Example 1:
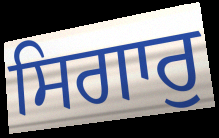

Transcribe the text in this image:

ਸਿਗਾਰੁ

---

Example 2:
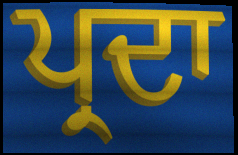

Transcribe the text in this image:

ਪ੍ਰਦਾ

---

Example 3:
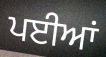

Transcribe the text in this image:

ਪਈਆਂ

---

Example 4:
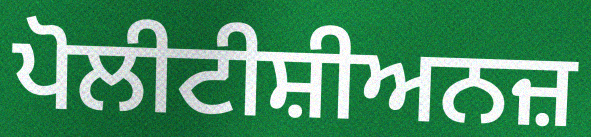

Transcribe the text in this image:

ਪੋਲੀਟੀਸ਼ੀਅਨਜ਼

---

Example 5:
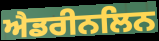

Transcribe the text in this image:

ਐਡਰੀਨਲਿਨ